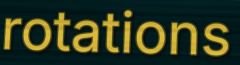
rotations